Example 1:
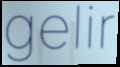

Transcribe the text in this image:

gelir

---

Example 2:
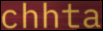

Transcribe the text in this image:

chhta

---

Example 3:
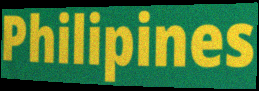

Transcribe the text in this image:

Philipines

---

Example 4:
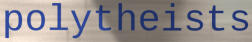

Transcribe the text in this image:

polytheists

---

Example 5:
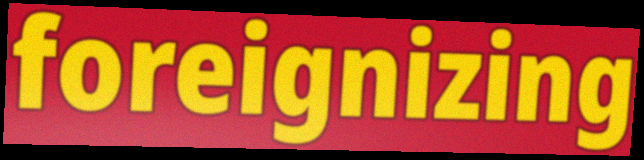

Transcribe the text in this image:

foreignizing